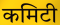
कमिटी